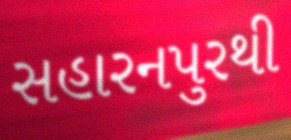
સહારનપુરથી